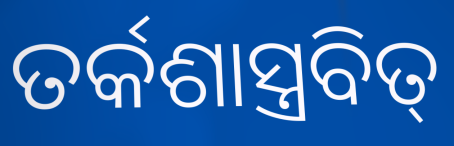
ତର୍କଶାସ୍ତ୍ରବିତ୍